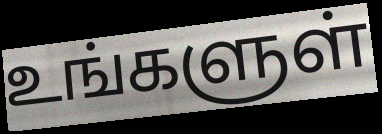
உங்களுள்